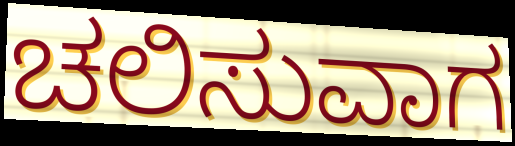
ಚಲಿಸುವಾಗ